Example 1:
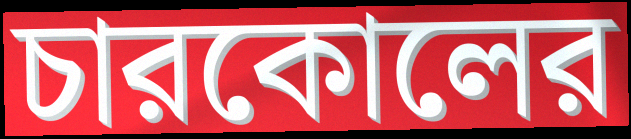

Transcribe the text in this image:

চারকোলের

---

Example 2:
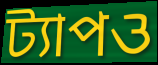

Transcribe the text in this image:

ট্যাপও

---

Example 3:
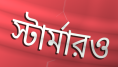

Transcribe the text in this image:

স্টার্মারও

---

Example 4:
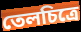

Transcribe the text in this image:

তেলচিত্রে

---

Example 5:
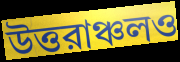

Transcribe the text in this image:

উত্তরাঞ্চলও